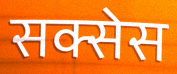
सक्सेस